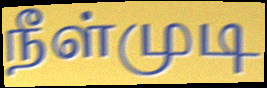
நீள்முடி